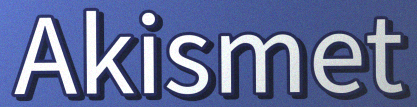
Akismet